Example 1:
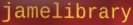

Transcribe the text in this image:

jamelibrary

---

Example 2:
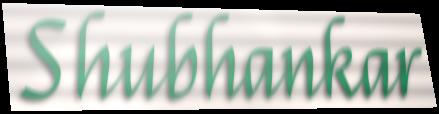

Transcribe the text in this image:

Shubhankar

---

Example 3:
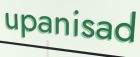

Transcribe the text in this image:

upanisad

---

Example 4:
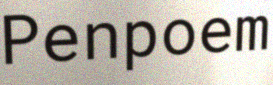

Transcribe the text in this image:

Penpoem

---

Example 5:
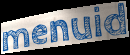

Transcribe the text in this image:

menuid